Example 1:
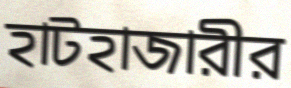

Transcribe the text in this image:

হাটহাজারীর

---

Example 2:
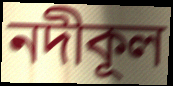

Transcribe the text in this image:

নদীকূল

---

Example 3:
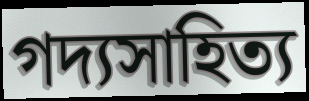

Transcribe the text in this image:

গদ্যসাহিত্য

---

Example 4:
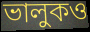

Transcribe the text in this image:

ভালুকও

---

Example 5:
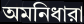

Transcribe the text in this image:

অমনিধারা